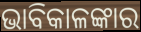
ଭାବିକାଳଙ୍କାର